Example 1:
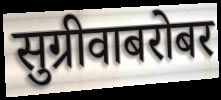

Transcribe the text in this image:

सुग्रीवाबरोबर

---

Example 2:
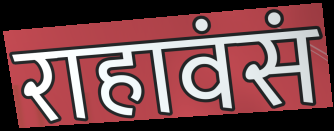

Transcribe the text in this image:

राहावंसं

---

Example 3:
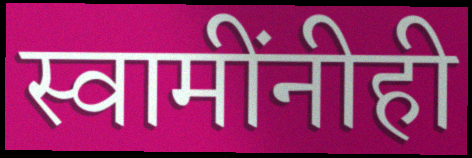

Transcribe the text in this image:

स्वामींनीही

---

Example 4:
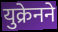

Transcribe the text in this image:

युक्रेनने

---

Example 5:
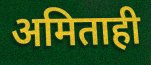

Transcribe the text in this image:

अमिताही